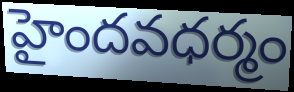
హైందవధర్మం